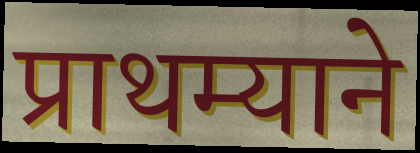
प्राथम्याने